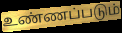
உண்ணப்படும்